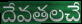
దేవతలచే